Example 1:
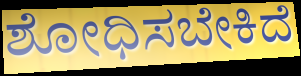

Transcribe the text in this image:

ಶೋಧಿಸಬೇಕಿದೆ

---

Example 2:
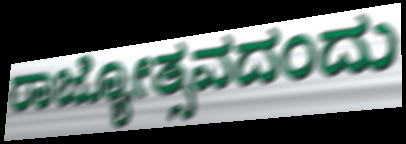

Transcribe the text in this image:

ರಾಜ್ಯೋತ್ಸವದಂದು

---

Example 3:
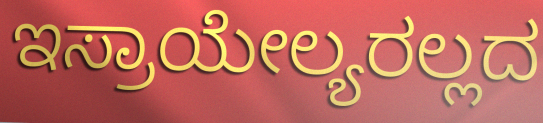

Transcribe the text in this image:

ಇಸ್ರಾಯೇಲ್ಯರಲ್ಲದ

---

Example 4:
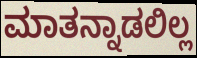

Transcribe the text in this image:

ಮಾತನ್ನಾಡಲಿಲ್ಲ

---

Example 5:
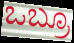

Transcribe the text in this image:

ಒಬ್ರೂ